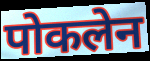
पोकलेन